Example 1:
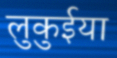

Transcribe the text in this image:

लुकुईया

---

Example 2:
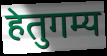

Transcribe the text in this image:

हेतुगम्य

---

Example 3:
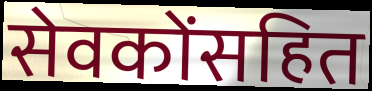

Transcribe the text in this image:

सेवकोंसहित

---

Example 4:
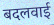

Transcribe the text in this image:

बदलवाई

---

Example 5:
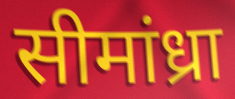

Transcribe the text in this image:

सीमांध्रा